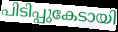
പിടിപ്പുകേടായി